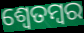
ଶ୍ଵେତମ୍ବର